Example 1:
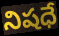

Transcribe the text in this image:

నిషధే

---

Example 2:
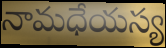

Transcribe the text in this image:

నామధేయస్య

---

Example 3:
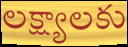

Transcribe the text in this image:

లక్ష్యాలకు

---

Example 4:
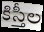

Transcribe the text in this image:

కిస్తీల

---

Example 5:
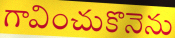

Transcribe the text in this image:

గావించుకొనెను